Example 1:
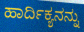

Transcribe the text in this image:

ಹಾರ್ದಿಕ್ಯನನ್ನು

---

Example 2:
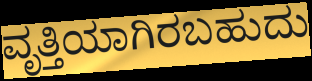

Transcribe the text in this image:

ವೃತ್ತಿಯಾಗಿರಬಹುದು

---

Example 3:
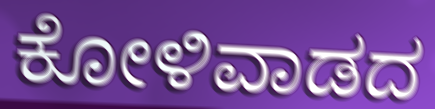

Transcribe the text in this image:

ಕೋಳಿವಾಡದ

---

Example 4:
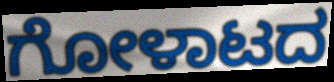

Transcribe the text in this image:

ಗೋಳಾಟದ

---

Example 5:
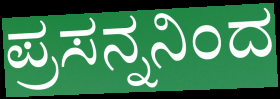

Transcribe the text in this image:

ಪ್ರಸನ್ನನಿಂದ